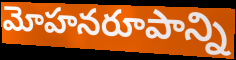
మోహనరూపాన్ని